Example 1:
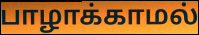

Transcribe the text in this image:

பாழாக்காமல்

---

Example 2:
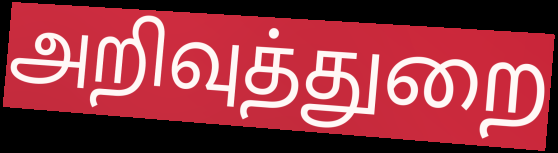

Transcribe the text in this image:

அறிவுத்துறை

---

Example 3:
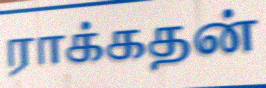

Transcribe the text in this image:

ராக்கதன்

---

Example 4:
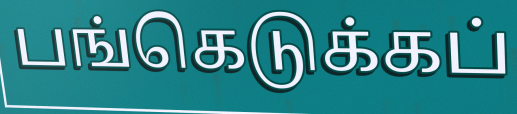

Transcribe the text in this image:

பங்கெடுக்கப்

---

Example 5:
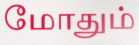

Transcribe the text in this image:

மோதும்